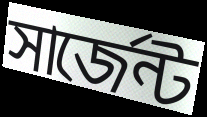
সার্জেন্ট